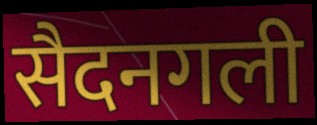
सैदनगली